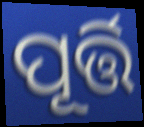
ପୂର୍ତ୍ତି